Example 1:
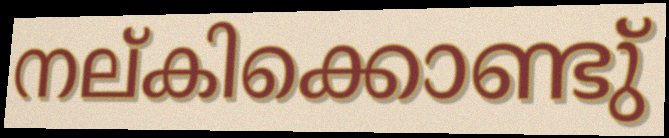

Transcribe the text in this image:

നല്കിക്കൊണ്ടു്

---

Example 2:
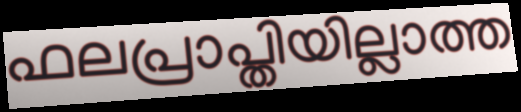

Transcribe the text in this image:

ഫലപ്രാപ്തിയില്ലാത്ത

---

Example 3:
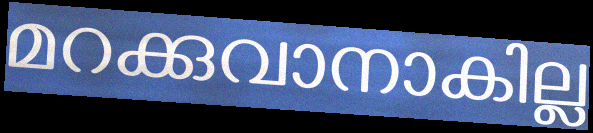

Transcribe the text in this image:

മറക്കുവാനാകില്ല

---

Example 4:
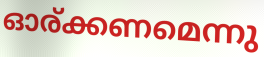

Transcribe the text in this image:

ഓര്ക്കണമെന്നു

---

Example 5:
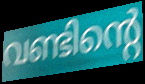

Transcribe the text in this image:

വണ്ടിന്റെ